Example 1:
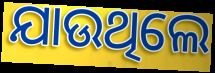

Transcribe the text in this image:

ଯାଉଥିଲେ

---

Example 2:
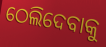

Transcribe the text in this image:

ଠେଲିଦେବାକୁ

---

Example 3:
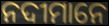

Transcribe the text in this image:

ନଦୀମାନେ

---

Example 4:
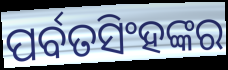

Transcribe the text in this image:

ପର୍ବତସିଂହଙ୍କର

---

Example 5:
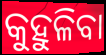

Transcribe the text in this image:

କୁହୁଳିବା